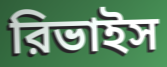
রিভাইস